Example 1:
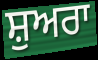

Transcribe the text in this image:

ਸ਼ੁਅਰਾ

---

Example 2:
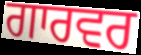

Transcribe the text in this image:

ਗਾਰਵਰ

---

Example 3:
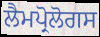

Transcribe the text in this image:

ਲੈਮਪ੍ਰੋਲੋਗਸ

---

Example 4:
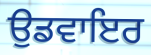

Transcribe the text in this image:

ਉਡਵਾਇਰ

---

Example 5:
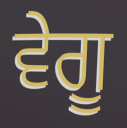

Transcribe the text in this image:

ਵੇਗੂ